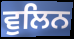
ਵੁਲਿਨ